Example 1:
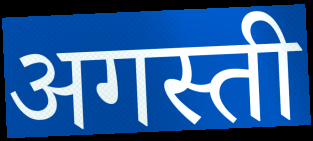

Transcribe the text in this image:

अगस्ती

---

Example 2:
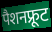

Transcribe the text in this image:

पैशनफ्रूट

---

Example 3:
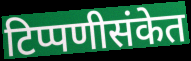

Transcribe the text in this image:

टिप्पणीसंकेत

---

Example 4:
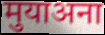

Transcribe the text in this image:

मुयाअना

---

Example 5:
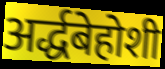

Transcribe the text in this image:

अर्द्धबेहोशी